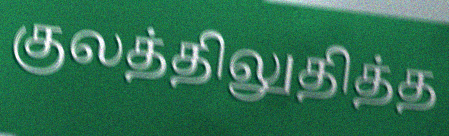
குலத்திலுதித்த